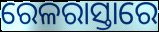
ରେଳରାସ୍ତାରେ